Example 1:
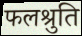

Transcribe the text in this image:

फलश्रुति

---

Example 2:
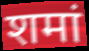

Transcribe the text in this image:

शमां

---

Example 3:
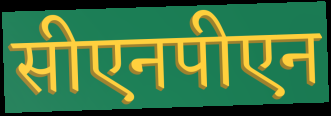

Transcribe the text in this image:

सीएनपीएन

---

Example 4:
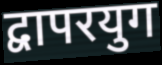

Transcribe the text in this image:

द्वापरयुग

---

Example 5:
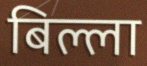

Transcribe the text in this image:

बिल्ला